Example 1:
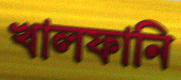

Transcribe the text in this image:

খালফানি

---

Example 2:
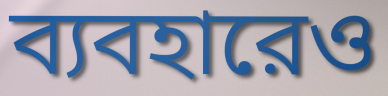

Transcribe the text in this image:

ব্যবহারেও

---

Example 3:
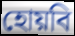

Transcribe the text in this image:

হোয়বি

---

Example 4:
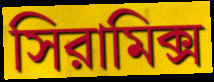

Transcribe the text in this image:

সিরামিক্স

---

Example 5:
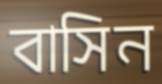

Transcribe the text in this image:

বাসিন